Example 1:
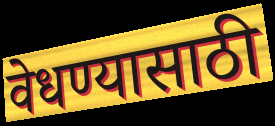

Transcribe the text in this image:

वेधण्यासाठी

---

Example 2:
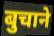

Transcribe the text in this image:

बुचाने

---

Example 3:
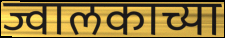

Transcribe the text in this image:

ज्वालकाच्या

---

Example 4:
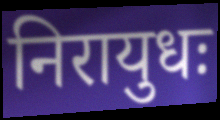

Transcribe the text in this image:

निरायुधः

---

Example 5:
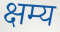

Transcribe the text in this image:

क्षम्य